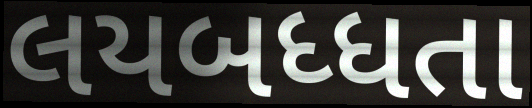
લયબધ્ધતા